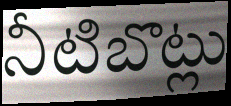
నీటిబొట్లు